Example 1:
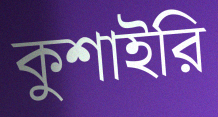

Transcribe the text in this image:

কুশাইরি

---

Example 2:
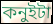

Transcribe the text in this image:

কনুইটা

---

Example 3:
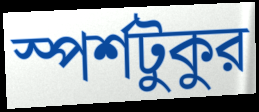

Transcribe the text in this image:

স্পর্শটুকুর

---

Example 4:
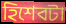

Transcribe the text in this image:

হিশেবটা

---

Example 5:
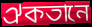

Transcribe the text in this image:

ঐকতানে